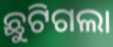
ଛୁଟିଗଲା